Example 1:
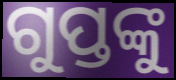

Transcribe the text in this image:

ଗୁପ୍ତଙ୍କୁ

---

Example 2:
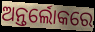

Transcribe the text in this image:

ଅନ୍ତର୍ଲୋକରେ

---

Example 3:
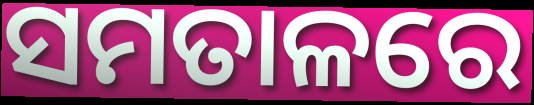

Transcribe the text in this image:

ସମତାଳରେ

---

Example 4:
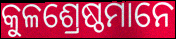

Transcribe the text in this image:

କୁଳଶ୍ରେଷ୍ଠମାନେ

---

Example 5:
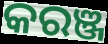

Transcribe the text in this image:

କରଞ୍ଜ